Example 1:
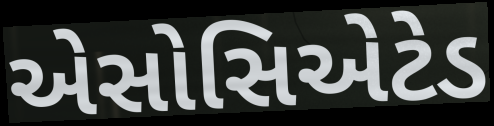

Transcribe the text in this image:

એસોસિએટેડ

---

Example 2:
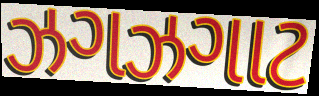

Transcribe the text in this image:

ઝગઝગાટ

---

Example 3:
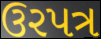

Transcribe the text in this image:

ઉરપત્ર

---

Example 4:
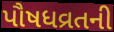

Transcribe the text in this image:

પૌષધવ્રતની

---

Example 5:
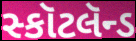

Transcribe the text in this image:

સ્કૉટલૅન્ડ